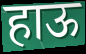
हाऊ